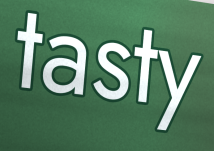
tasty